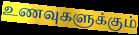
உணவுகளுக்கும்